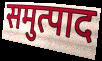
समुत्पाद